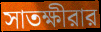
সাতক্ষীরার